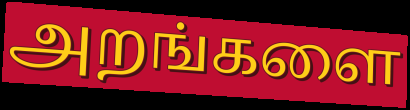
அறங்களை